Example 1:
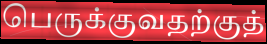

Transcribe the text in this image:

பெருக்குவதற்குத்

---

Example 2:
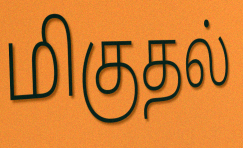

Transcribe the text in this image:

மிகுதல்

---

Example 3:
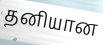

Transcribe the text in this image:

தனியான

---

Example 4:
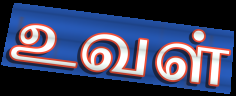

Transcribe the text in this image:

உவள்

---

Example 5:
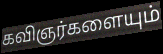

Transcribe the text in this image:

கவிஞர்களையும்